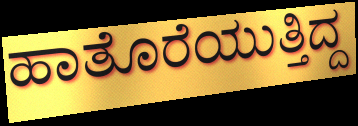
ಹಾತೊರೆಯುತ್ತಿದ್ದ